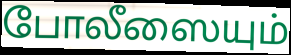
போலீஸையும்